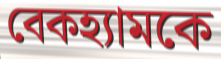
বেকহ্যামকে